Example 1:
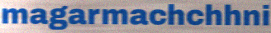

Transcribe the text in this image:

magarmachchhni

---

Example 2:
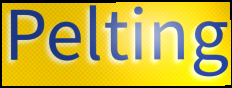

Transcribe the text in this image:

Pelting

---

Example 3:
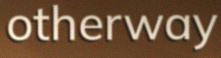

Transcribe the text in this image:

otherway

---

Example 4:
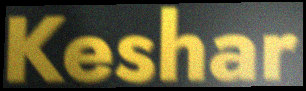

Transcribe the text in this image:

Keshar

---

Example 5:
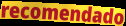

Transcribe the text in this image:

recomendado